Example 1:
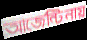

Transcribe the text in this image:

আর্জেন্টিনায়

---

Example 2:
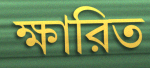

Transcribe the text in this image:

ক্ষারিত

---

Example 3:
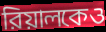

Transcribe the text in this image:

রিয়ালকেও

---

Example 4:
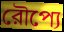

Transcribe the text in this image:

রৌপ্যে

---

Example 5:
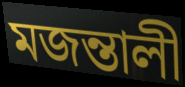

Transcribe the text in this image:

মজন্তালী